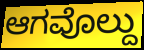
ಆಗವೊಲ್ದು